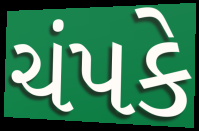
ચંપકે